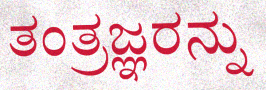
ತಂತ್ರಜ್ಞರನ್ನು